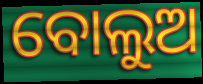
ବୋଲୁଅ